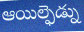
ఆయిల్ఫెడ్ను